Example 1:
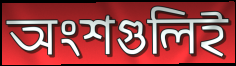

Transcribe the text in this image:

অংশগুলিই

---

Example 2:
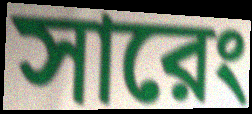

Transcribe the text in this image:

সারেং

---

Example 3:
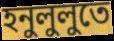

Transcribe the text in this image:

হনুলুলুতে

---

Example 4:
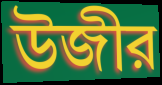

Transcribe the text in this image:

উজীর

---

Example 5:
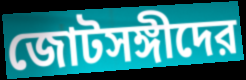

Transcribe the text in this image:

জোটসঙ্গীদের